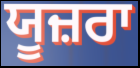
ਯੂਜ਼ਰਾ